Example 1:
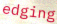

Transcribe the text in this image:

edging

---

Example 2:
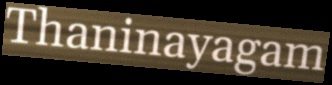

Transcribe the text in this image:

Thaninayagam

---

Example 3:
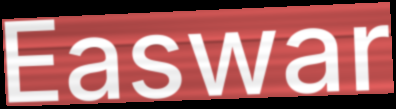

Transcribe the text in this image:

Easwar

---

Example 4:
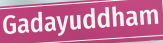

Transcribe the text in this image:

Gadayuddham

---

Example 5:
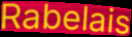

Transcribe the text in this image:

Rabelais